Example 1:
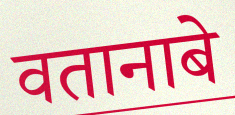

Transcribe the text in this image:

वतानाबे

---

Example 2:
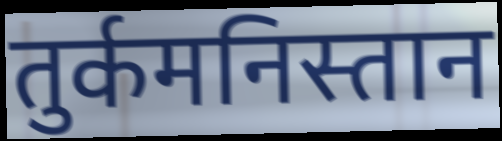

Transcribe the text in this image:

तुर्कमनिस्तान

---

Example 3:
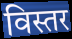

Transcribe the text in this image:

विस्तर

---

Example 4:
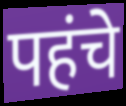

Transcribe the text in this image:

पहंचे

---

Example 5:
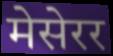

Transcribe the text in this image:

मेसेरर